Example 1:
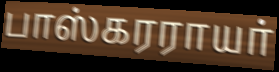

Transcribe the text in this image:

பாஸ்கரராயர்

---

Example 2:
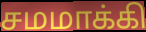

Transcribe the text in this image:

சமமாக்கி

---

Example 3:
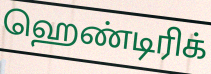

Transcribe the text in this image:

ஹெண்டிரிக்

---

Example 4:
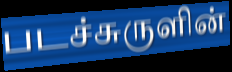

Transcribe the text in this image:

படச்சுருளின்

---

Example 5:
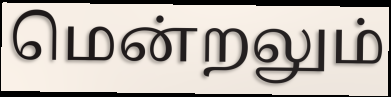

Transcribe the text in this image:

மென்றலும்